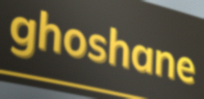
ghoshane